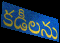
కడీలను